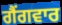
ਗੈਂਗਵਾਰ